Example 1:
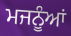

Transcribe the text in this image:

ਮਜਨੂੰਆਂ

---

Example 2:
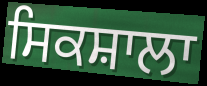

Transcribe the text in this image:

ਸਿਕਸ਼ਾਲਾ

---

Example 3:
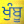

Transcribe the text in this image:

ਖੁੰਬੂ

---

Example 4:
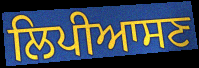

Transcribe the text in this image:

ਲਿਪੀਆਸਣ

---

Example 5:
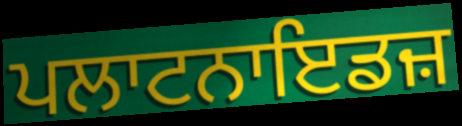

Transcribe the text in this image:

ਪਲਾਟਨਾਇਡਜ਼